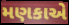
મણકાએ